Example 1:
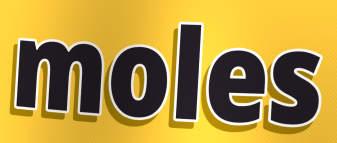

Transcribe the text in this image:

moles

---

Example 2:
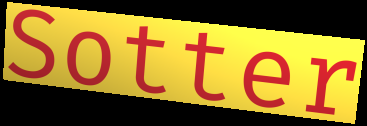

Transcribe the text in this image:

Sotter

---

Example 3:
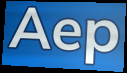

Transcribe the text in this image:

Aep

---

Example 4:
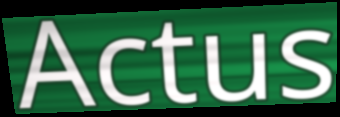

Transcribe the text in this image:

Actus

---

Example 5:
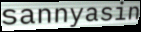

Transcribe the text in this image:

sannyasin